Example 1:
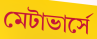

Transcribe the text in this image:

মেটাভার্সে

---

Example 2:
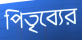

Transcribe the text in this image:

পিতৃব্যের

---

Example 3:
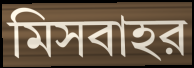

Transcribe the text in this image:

মিসবাহর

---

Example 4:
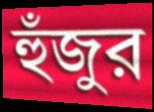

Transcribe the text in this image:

হুঁজুর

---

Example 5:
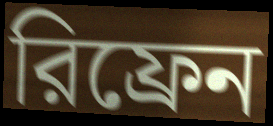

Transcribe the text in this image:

রিফ্রেন